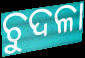
ଚୁଦଳା